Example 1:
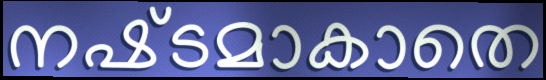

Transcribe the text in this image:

നഷ്‌ടമാകാതെ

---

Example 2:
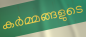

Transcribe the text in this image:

കർമ്മങ്ങളുടെ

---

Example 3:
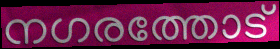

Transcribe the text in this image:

നഗരത്തോട്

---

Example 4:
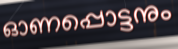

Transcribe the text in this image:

ഓണപ്പൊട്ടനും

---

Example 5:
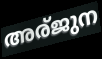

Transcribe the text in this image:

അര്ജുന